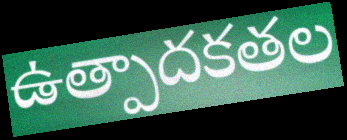
ఉత్పాదకతల